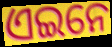
ଏଇନେ